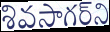
శివసాగర్‌ని